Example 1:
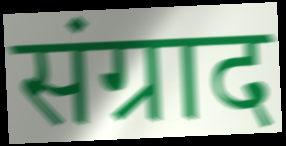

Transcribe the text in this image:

संग्राद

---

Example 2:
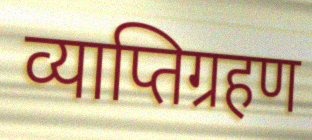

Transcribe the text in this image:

व्याप्तिग्रहण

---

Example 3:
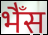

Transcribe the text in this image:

भैँस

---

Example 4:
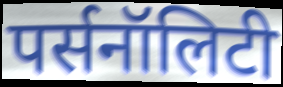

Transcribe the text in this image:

पर्सनॉलिटी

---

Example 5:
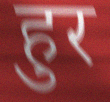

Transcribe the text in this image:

हुर